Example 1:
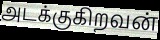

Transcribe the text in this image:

அடக்குகிறவன்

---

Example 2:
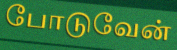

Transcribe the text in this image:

போடுவேன்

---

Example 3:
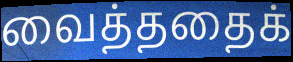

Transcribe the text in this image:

வைத்ததைக்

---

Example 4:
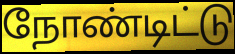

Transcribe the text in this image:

நோண்டிட்டு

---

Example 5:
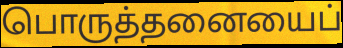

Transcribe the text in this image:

பொருத்தனையைப்